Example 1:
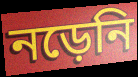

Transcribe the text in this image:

নড়েনি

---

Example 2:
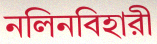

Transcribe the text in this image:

নলিনবিহারী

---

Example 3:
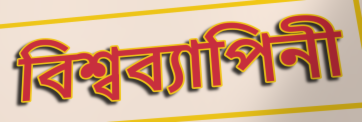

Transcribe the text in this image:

বিশ্বব্যাপিনী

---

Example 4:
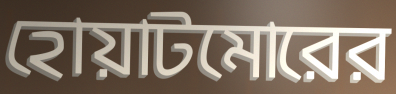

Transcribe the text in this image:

হোয়াটমোরের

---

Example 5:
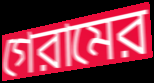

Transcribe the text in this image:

গেরামের